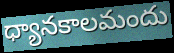
ధ్యానకాలమందు